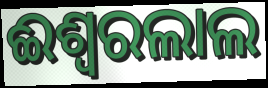
ଈଶ୍ଵରଲାଲ